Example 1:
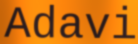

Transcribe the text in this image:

Adavi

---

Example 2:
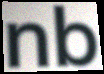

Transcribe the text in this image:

nb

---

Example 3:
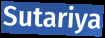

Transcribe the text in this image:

Sutariya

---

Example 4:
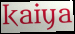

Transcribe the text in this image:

kaiya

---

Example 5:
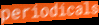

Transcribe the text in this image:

periodicals